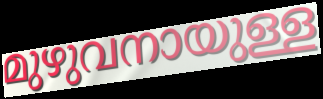
മുഴുവനായുള്ള